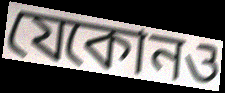
যেকোনও